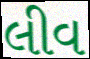
લીવ